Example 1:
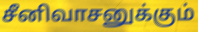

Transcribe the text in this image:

சீனிவாசனுக்கும்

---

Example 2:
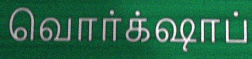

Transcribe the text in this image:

வொர்க்‌ஷாப்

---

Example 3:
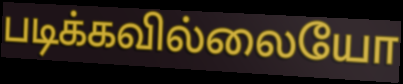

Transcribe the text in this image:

படிக்கவில்லையோ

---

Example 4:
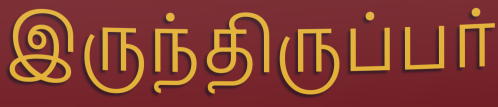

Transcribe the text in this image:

இருந்திருப்பர்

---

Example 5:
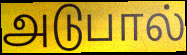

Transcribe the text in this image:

அடுபால்